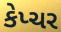
કેપ્ચર